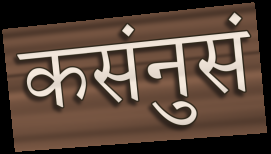
कसंनुसं